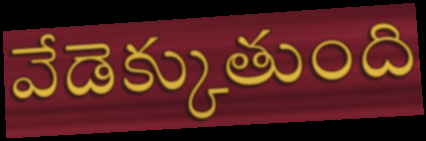
వేడెక్కుతుంది